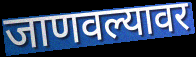
जाणवल्यावर